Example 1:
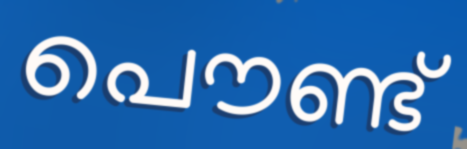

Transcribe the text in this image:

പൌണ്ട്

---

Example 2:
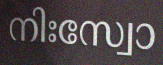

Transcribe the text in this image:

നിഃസ്വോ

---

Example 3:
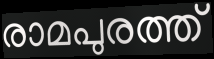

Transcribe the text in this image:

രാമപുരത്ത്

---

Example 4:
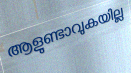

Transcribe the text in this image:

ആളുണ്ടാവുകയില്ല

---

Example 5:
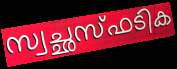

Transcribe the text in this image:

സ്വച്ഛസ്ഫടിക